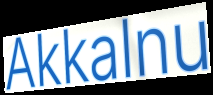
Akkalnu